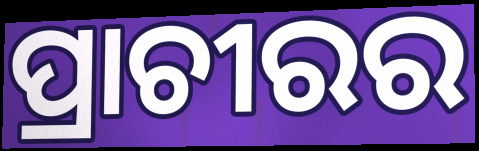
ପ୍ରାଚୀରର